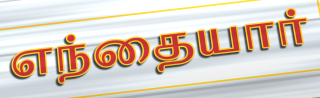
எந்தையார்